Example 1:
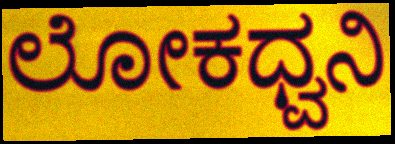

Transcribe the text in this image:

ಲೋಕಧ್ವನಿ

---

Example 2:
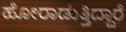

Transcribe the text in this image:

ಹೋರಾಡುತ್ತಿದ್ದಾರೆ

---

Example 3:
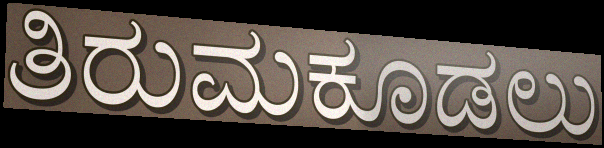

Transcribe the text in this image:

ತಿರುಮಕೂಡಲು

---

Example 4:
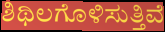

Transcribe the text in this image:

ಶಿಥಿಲಗೊಳಿಸುತ್ತಿವೆ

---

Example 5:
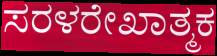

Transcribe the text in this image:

ಸರಳರೇಖಾತ್ಮಕ